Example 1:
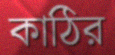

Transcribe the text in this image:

কাঠির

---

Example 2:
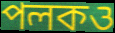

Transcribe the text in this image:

পলকও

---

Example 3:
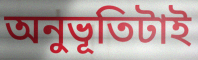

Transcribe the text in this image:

অনুভূতিটাই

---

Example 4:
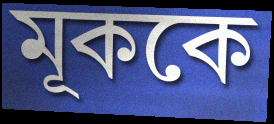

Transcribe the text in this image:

মূককে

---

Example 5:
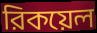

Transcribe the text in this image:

রিকয়েল